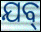
ଯବ୍